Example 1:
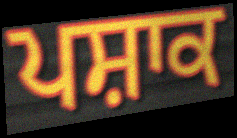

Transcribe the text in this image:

ਪਸ਼ਾਕ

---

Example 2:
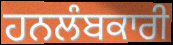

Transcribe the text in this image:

ਹਨਲੰਬਕਾਰੀ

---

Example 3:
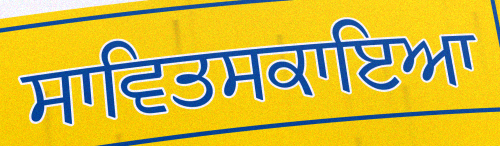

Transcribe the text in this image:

ਸਾਵਿਤਸਕਾਇਆ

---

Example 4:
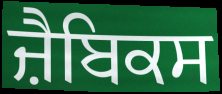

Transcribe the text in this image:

ਜ਼ੈਬਿਕਸ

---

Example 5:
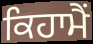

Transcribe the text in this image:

ਕਿਹਾਮੈਂ